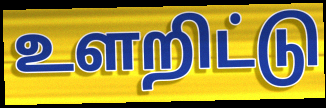
உளறிட்டு